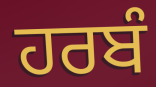
ਹਰਬੰ